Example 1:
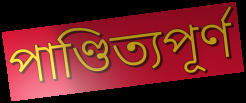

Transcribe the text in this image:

পাণ্ডিত্যপূৰ্ণ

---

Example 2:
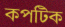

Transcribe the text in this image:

কপটিক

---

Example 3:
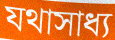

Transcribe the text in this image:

যথাসাধ্য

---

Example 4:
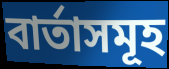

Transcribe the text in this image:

বাৰ্তাসমূহ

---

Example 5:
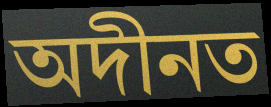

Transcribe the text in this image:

অদীনত